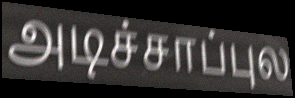
அடிச்சாப்புல